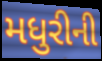
મધુરીની